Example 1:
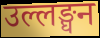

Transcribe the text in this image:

उल्लङ्घन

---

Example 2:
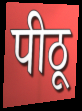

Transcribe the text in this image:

पीठू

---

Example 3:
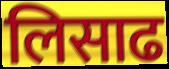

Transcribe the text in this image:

लिसाढ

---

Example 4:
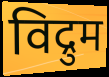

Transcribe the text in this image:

विद्रुम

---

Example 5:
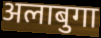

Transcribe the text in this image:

अलाबुगा